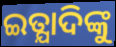
ଇତ୍ଯାଦିଙ୍କୁ